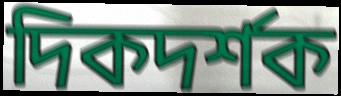
দিকদর্শক